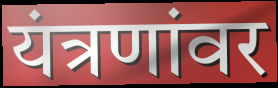
यंत्रणांवर